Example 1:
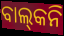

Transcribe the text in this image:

ବାଲ୍‍କନି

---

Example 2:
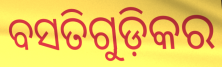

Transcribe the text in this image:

ବସତିଗୁଡ଼ିକର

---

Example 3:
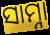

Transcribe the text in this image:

ସାମ୍ନା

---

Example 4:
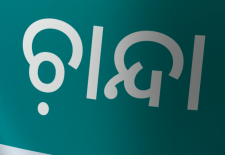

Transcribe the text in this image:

ଚ଼ାନ୍ଦା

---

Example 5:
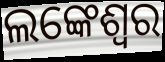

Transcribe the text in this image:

ଲଙ୍କେଶ୍ବର